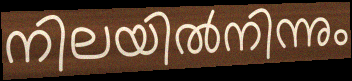
നിലയിൽനിന്നും